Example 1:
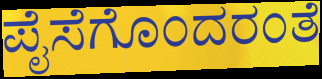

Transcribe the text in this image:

ಪೈಸೆಗೊಂದರಂತೆ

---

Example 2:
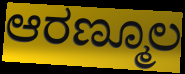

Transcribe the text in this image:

ಆರಣ್ಮೂಲ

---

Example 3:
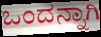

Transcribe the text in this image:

ಒಂದನ್ನಾಗಿ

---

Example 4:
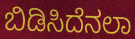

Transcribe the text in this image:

ಬಿಡಿಸಿದೆನಲಾ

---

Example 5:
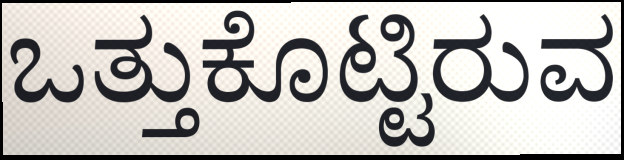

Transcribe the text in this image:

ಒತ್ತುಕೊಟ್ಟಿರುವ